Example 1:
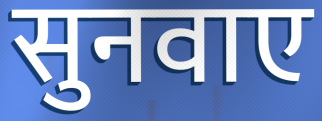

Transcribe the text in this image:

सुनवाए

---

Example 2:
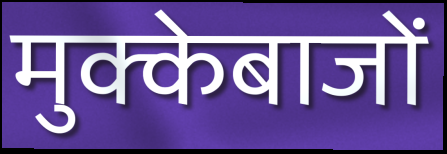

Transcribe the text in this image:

मुक्केबाजों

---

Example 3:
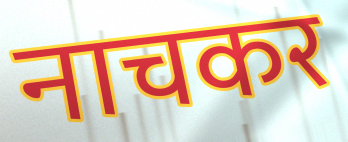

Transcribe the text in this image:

नाचकर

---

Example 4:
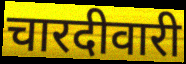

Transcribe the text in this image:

चारदीवारी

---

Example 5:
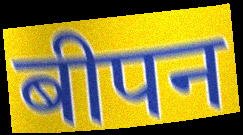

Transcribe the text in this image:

बीपन